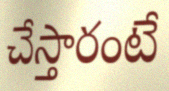
చేస్తారంటే